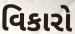
વિકારો